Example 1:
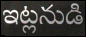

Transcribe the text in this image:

ఇట్లనుడి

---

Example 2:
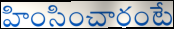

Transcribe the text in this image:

హింసించారంటే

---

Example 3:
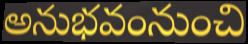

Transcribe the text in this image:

అనుభవంనుంచి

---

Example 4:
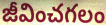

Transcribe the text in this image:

జీవించగలం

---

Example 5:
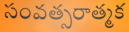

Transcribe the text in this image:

సంవత్సరాత్మక